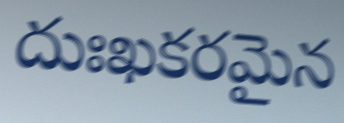
దుఃఖకరమైన